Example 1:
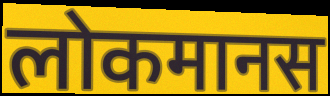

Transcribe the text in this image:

लोकमानस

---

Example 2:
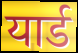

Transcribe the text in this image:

यार्ड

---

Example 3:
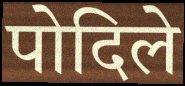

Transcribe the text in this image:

पोदिले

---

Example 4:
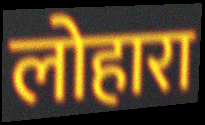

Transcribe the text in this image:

लोहारा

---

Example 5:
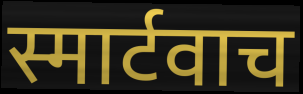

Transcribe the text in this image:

स्मार्टवाच